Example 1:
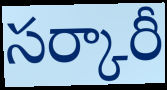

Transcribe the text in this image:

సర్కారీ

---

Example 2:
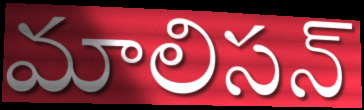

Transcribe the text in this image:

మాలిసన్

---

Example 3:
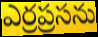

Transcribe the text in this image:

ఎర్రప్రసను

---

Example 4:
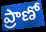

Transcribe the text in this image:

ప్రాణో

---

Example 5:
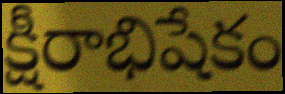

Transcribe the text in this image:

క్షీరాభిషేకం